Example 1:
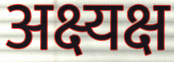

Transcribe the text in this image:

अक्ष्यक्ष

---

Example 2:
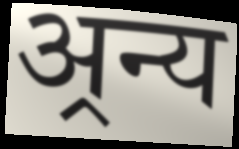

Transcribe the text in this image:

अ्रन्य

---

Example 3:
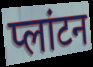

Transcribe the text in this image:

प्लांटन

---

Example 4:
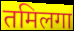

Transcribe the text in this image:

तमिलगा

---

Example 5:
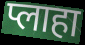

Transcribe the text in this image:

प्लाहा